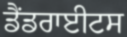
ਡੈਂਡਰਾਈਟਸ